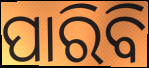
ପାରିବି